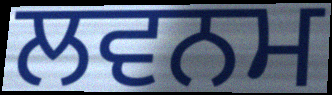
ਲਵਨਮ